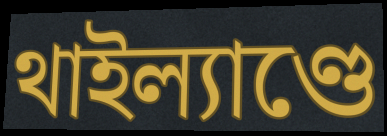
থাইল্যাণ্ডে